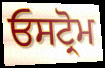
ਓਸਟ੍ਰੋਮ